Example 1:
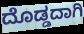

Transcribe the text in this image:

ದೊಡ್ಡದಾಗಿ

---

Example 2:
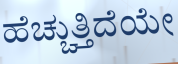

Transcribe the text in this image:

ಹೆಚ್ಚುತ್ತಿದೆಯೇ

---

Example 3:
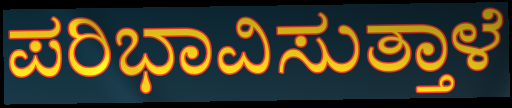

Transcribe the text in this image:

ಪರಿಭಾವಿಸುತ್ತಾಳೆ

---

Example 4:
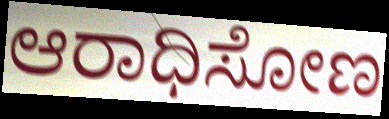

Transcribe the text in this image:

ಆರಾಧಿಸೋಣ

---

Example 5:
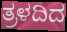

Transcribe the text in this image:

ತ್ರಳದಿದ